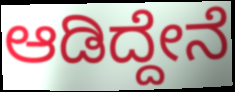
ಆಡಿದ್ದೇನೆ